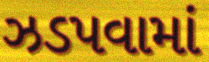
ઝડપવામાં